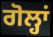
ਗੋਲ੍ਹਾਂ